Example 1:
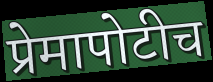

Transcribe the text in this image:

प्रेमापोटीच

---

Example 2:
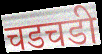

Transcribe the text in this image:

चडचडी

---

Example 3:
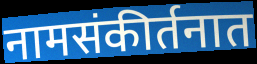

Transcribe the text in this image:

नामसंकीर्तनात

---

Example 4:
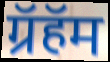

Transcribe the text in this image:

ग्रॅहॅम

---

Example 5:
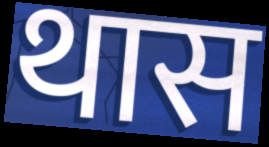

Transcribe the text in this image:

थास